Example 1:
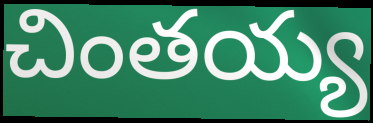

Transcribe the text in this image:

చింతయ్య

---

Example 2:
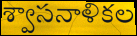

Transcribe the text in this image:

శ్వాసనాళికల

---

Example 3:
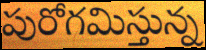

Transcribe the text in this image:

పురోగమిస్తున్న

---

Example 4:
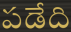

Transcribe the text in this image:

పడేది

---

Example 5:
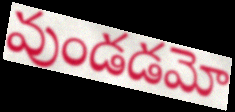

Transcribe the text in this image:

వుండడమో